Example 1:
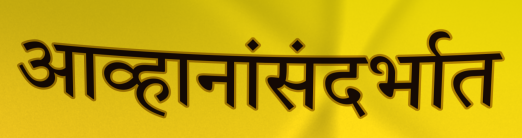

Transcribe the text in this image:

आव्हानांसंदर्भात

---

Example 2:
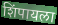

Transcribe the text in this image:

शिंपायला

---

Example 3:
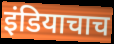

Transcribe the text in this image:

इंडियाचाच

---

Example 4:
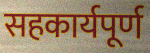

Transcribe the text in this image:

सहकार्यपूर्ण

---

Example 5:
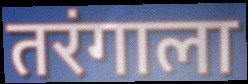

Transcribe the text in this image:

तरंगाला